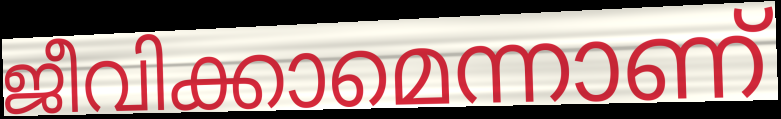
ജീവിക്കാമെന്നാണ്